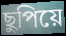
ছুপিয়ে